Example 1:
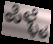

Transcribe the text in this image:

ಪಿಳ್ಳೈ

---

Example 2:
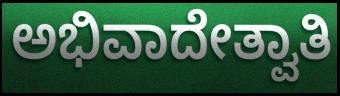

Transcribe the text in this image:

ಅಭಿವಾದೇತ್ವಾತಿ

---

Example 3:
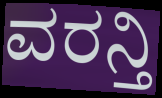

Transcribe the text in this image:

ವರನ್ತಿ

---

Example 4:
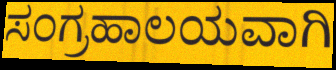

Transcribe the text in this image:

ಸಂಗ್ರಹಾಲಯವಾಗಿ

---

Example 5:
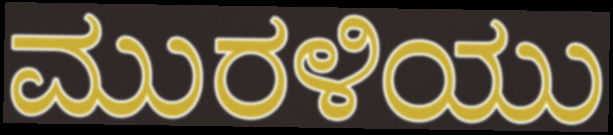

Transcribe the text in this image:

ಮುರಳಿಯು